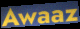
Awaaz